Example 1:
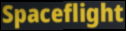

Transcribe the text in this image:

Spaceflight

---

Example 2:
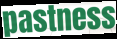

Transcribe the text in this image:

pastness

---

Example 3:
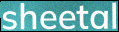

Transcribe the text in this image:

sheetal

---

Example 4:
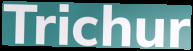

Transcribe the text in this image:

Trichur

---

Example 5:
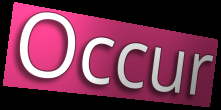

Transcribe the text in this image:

Occur